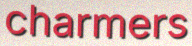
charmers